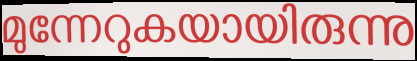
മുന്നേറുകയായിരുന്നു